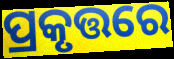
ପ୍ରକୃତ୍ତରେ